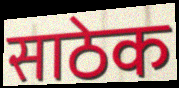
साठेक